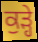
ਕੁੜ੍ਹੇ